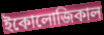
ইকোলোজিকাল